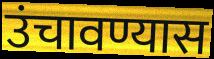
उंचावण्यास